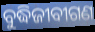
ବୁଦ୍ଧିଜୀବୀଗଣ